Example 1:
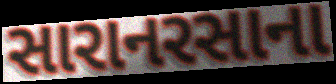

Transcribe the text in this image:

સારાનરસાના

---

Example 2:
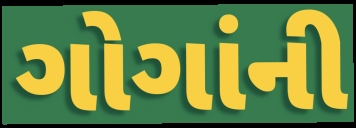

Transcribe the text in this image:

ગોગાંની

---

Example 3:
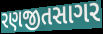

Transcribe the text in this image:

રણજીતસાગર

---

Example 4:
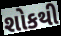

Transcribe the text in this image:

શોકથી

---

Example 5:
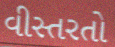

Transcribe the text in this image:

વીસ્તરતો